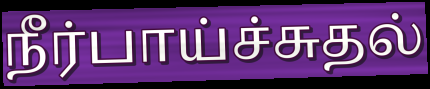
நீர்பாய்ச்சுதல்